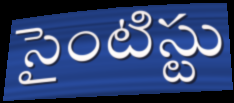
సైంటిస్టు